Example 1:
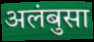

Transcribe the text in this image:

अलंबुसा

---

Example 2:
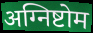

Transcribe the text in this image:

अग्निष्टोम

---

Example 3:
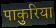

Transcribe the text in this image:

पाकुरिया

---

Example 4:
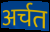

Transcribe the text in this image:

अर्चत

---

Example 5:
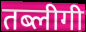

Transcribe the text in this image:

तब्लीगी